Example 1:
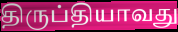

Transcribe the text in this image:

திருப்தியாவது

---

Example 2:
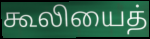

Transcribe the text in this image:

கூலியைத்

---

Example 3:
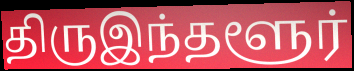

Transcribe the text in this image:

திருஇந்தளூர்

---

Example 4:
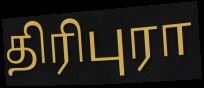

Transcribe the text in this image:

திரிபுரா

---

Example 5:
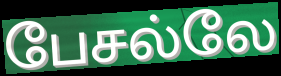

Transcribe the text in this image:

பேசல்லே